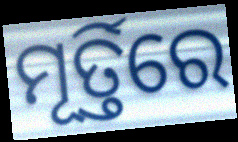
ମୂର୍ତ୍ତିରେ